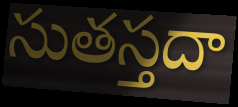
సుతస్తదా